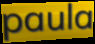
paula